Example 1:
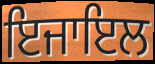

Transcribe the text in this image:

ਇਜਾਇਲ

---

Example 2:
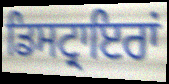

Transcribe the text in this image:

ਡਿਸਟ੍ਰਾਇਰਾਂ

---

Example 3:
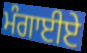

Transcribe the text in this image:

ਮੰਗਾਈਏ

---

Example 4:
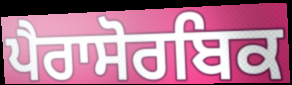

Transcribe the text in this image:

ਪੈਰਾਸੋਰਬਿਕ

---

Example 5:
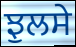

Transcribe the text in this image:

ਝੁਲਸੇ